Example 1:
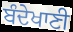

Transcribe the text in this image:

ਬੰਦੇਖਾਣੀ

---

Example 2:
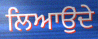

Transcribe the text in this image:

ਲਿਆਉੁਂਦੇ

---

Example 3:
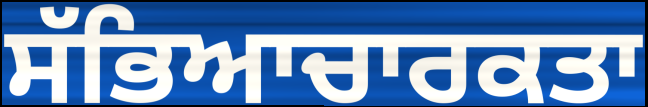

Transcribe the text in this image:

ਸੱਭਿਆਚਾਰਕਤਾ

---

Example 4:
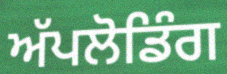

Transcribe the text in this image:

ਅੱਪਲੋਡਿੰਗ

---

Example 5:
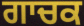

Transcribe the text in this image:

ਗਾਚਕ